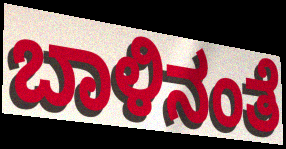
ಬಾಳಿನಂತೆ